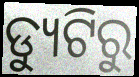
ଡ୍ୟୁଟିରୁ